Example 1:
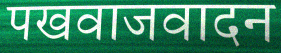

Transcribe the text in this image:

पखवाजवादन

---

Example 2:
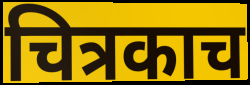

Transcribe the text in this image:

चित्रकाच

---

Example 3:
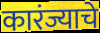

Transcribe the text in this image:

कारंज्याचे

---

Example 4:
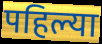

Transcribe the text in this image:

पहिल्या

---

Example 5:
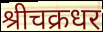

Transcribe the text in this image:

श्रीचक्रधर